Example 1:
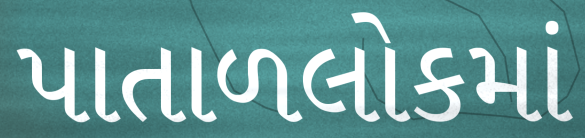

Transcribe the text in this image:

પાતાળલોકમાં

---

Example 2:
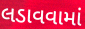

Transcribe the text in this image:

લડાવવામાં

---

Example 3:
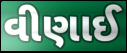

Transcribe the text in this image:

વીણાઈ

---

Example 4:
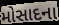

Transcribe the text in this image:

મોસાદના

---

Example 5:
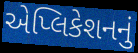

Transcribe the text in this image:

એપ્લિકેશનનું